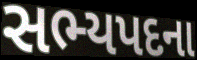
સભ્યપદના